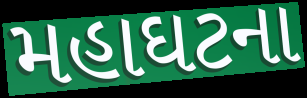
મહાઘટના